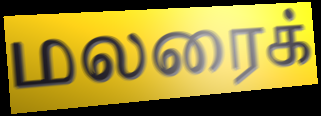
மலரைக்